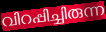
വിറപ്പിച്ചിരുന്ന